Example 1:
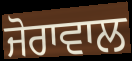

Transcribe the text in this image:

ਜੋਰਾਵਾਲ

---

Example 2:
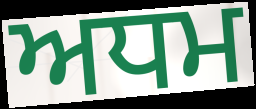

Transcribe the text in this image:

ਅਧਮ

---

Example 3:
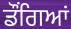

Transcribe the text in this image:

ਡੌਂਗਿਆਂ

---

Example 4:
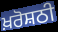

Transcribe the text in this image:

ਖ਼ਰੋਸ਼ਠੀ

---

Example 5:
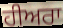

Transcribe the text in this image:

ਹੀਅਰਾ